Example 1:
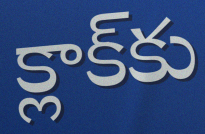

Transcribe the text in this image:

క్లాక్‌కు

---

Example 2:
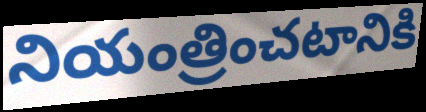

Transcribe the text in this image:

నియంత్రించటానికి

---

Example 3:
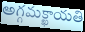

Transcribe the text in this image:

అగ్గమక్ఖాయతి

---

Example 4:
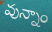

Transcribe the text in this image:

వున్నాం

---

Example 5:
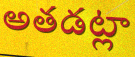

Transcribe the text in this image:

అతడట్లా